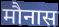
मौनास